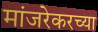
मांजरेकरच्या